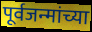
पूर्वजन्मांच्या